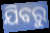
ଯିବରୁ